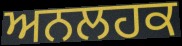
ਅਨਲਹਕ